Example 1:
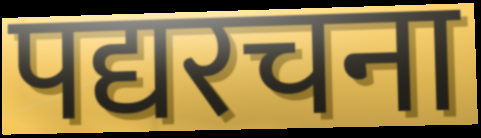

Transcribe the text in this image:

पद्यरचना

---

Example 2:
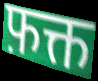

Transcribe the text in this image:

फ़क्त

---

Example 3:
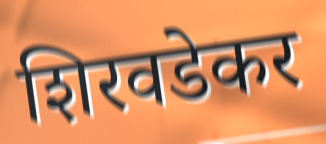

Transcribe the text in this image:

शिरवडेकर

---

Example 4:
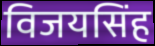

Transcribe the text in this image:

विजयसिंह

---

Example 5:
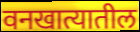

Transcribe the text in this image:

वनखात्यातील